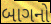
બાગનો